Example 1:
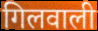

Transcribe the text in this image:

गिलवाली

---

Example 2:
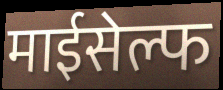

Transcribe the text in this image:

माईसेल्फ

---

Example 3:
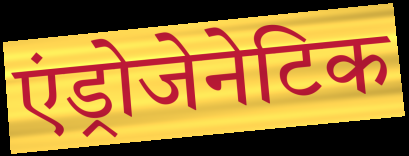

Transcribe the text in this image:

एंड्रोजेनेटिक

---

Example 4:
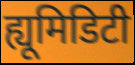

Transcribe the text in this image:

ह्यूमिडिटी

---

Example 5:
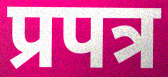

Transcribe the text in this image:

प्रपत्र